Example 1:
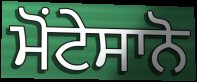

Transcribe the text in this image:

ਮੋਂਟੇਸਾਨੋ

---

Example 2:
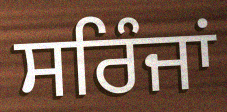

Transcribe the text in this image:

ਸਰਿੰਜਾਂ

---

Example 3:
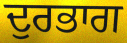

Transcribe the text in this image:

ਦੁਰਭਾਗ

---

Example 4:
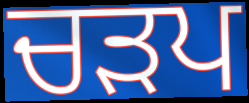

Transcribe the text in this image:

ਚੜਪ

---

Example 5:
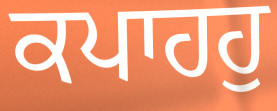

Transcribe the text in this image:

ਕਪਾਹਹੁ